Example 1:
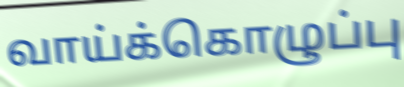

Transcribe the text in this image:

வாய்க்கொழுப்பு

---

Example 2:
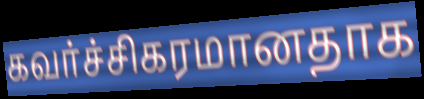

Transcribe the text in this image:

கவர்ச்சிகரமானதாக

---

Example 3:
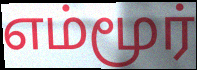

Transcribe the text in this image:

எம்மூர்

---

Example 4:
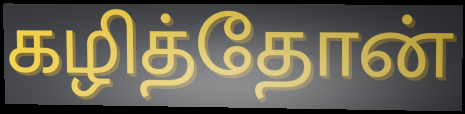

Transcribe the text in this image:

கழித்தோன்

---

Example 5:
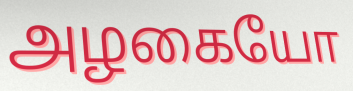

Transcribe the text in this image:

அழகையோ